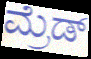
ಮ್ರೆಡ್